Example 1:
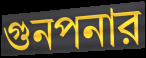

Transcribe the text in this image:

গুনপনার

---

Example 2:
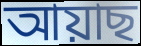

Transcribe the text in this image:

আয়াছ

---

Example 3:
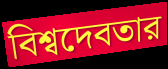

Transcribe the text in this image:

বিশ্বদেবতার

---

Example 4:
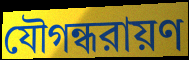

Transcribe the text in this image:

যৌগন্ধরায়ণ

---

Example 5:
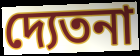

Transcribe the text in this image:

দ্যেতনা